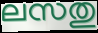
ലസതു